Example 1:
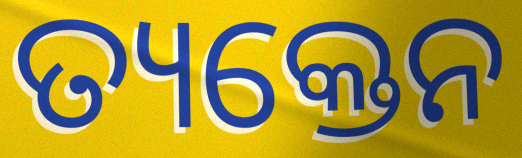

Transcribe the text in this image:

ତ୍ୟକ୍ତେନ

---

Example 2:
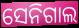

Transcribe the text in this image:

ସେନିଗାଲ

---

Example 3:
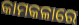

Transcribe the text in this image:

କାମକଳାରେ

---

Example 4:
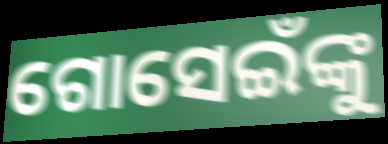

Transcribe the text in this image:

ଗୋସେଇଁଙ୍କୁ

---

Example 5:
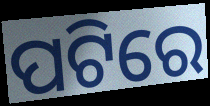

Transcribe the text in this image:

ପଟିରେ